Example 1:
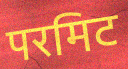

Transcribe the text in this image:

परमिट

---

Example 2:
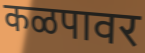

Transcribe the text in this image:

कळपावर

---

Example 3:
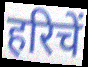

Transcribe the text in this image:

हरिचें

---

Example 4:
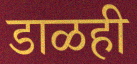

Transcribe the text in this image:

डाळही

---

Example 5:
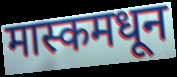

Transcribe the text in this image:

मास्कमधून